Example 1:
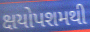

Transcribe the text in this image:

ક્ષયોપશમથી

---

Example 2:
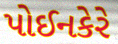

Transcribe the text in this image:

પોઈનકેરે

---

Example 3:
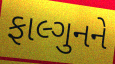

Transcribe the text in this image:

ફાલ્ગુનને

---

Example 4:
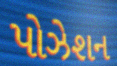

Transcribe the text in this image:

પોઝેશન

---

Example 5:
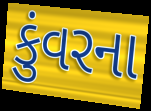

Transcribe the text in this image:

કુંવરના